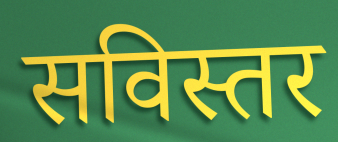
सविस्तर